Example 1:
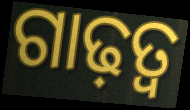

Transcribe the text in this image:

ଗାଢ଼ତ୍ବ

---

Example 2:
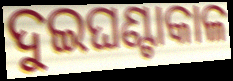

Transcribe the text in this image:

ଦୁଇଘଣ୍ଟାକାଳ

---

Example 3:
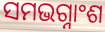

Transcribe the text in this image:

ସମଭଗ୍ନାଂଶ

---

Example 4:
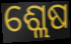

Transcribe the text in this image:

ଶ୍ଲେଷ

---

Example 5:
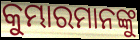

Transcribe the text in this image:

କୁମ୍ଭାରମାନଙ୍କୁ